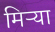
मिऱ्या